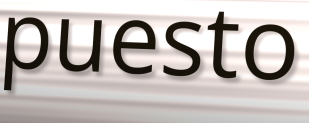
puesto